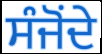
ਸੰਜੋਂਦੇ